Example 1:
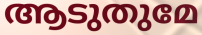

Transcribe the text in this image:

ആടുതുമേ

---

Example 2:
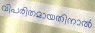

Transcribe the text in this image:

വിപരിതമായതിനാൽ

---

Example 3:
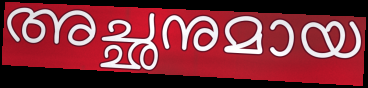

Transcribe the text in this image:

അച്ഛനുമായ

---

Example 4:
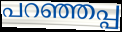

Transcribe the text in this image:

പറഞ്ഞപ്പ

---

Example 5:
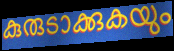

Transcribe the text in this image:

കുരുടാക്കുകയും